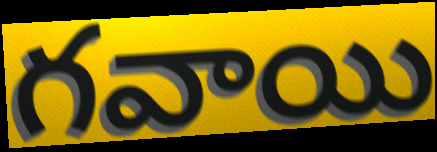
గవాయి